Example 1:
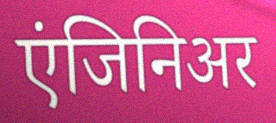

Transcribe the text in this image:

एंजिनिअर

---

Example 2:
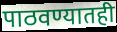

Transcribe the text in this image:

पाठवण्यातही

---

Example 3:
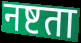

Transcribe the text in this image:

नष्टता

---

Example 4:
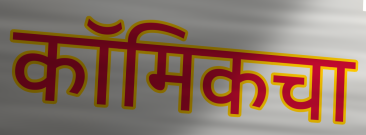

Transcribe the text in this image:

कॉमिकचा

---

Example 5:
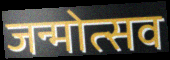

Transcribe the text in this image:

जन्मोत्सव